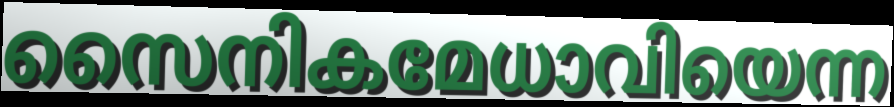
സൈനികമേധാവിയെന്ന